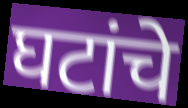
घटांचे